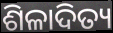
ଶିଳାଦିତ୍ୟ